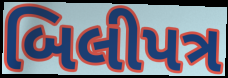
બિલીપત્ર